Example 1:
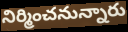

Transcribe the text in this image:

నిర్మించనున్నారు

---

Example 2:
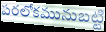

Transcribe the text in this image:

పరలోకమునుబట్టి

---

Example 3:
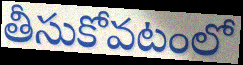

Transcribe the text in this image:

తీసుకోవటంలో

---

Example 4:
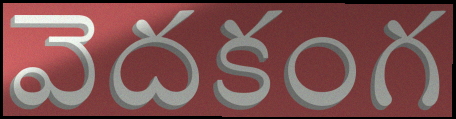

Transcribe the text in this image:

వెదకంగ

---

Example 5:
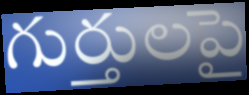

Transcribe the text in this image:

గుర్తులపై